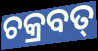
ଚକ୍ରବତ୍